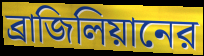
ব্রাজিলিয়ানের